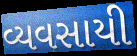
વ્યવસાયી